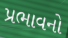
પ્રભાવનો